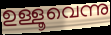
ഉള്ളൂവെന്നു